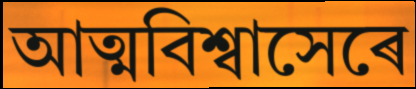
আত্মবিশ্বাসেৰে